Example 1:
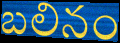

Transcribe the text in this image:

బలినం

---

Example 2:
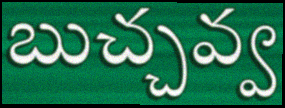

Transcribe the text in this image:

బుచ్చవ్వ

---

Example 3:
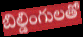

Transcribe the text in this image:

బిల్డింగులతో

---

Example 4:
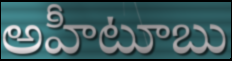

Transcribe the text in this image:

అహీటూబు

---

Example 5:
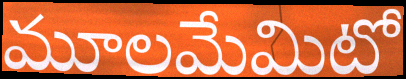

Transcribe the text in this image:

మూలమేమిటో